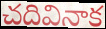
చదివినాక